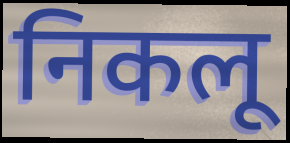
निकलू